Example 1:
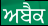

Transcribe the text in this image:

ਅਬੈਕ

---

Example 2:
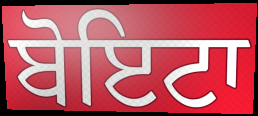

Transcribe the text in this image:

ਬੋਇਟਾ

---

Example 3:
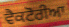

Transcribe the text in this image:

ਵੈਕਟੋਰੀਆ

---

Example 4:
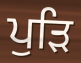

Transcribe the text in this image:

ਪੁੜਿ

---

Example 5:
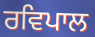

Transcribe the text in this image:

ਰਵਿਪਾਲ